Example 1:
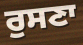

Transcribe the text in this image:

ਰੁਸਣਾ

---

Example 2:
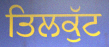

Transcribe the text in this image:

ਤਿਲਕੁੱਟ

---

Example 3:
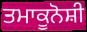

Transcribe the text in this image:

ਤਮਾਕੂਨੋਸ਼ੀ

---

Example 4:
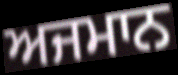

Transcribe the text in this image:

ਅਜਮਾਨ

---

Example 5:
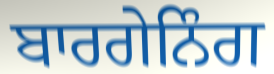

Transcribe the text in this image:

ਬਾਰਗੇਨਿੰਗ